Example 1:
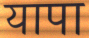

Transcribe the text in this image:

यापा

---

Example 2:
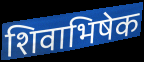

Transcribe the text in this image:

शिवाभिषेक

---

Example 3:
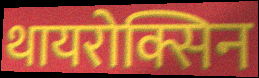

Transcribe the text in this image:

थायरोक्सिन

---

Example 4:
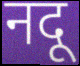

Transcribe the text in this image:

नदू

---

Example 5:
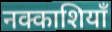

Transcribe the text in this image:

नक्काशियाँ